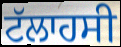
ਟੱਲਾਹਸੀ